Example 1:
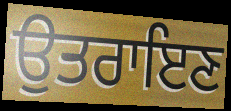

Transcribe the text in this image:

ਉਤਰਾਇਣ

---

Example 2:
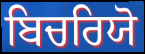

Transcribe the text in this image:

ਬਿਚਰਿਯੋ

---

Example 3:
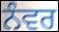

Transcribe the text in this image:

ਨੰਵਰ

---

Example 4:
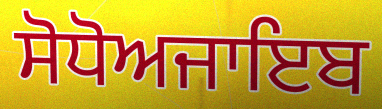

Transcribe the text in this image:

ਸੋਧੋਅਜਾਇਬ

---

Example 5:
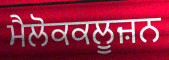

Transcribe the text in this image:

ਮੈਲੋਕਕਲੂਜ਼ਨ